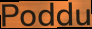
Poddu